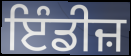
ਇੰਡੀਜ਼